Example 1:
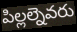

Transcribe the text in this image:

పిల్లల్నెవరు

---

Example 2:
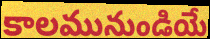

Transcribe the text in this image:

కాలమునుండియే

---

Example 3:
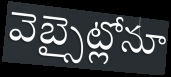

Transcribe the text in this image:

వెబ్సైట్లోనూ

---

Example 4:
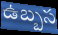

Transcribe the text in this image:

ఉబ్బస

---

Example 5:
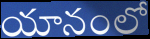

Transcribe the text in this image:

యానంలో